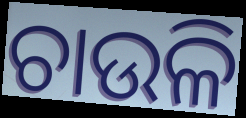
ଚାଉଳି